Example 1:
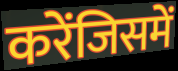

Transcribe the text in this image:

करेंजिसमें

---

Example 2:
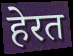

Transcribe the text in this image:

हेरत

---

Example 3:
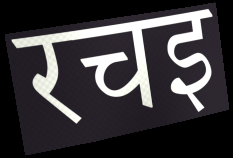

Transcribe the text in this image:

रचइ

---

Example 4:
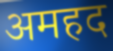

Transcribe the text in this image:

अमहद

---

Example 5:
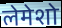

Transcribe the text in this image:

लेमेशो